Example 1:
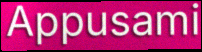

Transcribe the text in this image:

Appusami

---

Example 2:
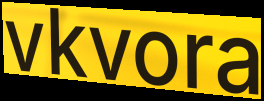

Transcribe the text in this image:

vkvora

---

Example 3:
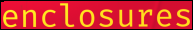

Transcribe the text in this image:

enclosures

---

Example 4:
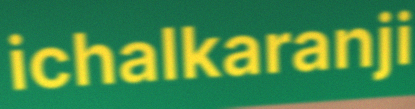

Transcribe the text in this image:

ichalkaranji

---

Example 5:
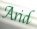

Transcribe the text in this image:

Arid